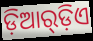
ଡ଼ିଆର୍‌ଡ଼ିଏ